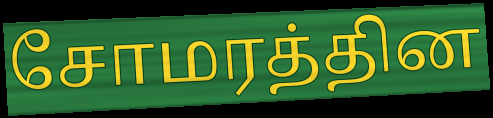
சோமரத்தின